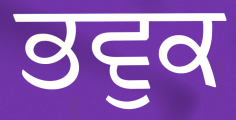
ਭਵੁਕ